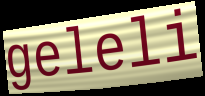
geleli